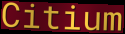
Citium